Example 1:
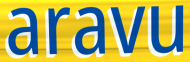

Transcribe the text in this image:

aravu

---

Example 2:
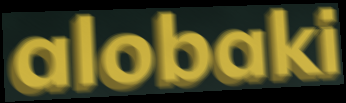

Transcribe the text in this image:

alobaki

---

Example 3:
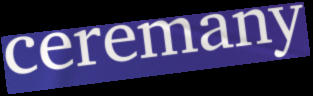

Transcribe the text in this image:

ceremany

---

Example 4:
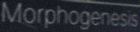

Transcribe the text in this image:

Morphogenesis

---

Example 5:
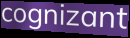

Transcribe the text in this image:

cognizant